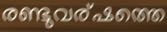
രണ്ടുവര്ഷത്തെ